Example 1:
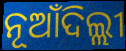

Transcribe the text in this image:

ନୂଆଁଦିଲ୍ଲୀ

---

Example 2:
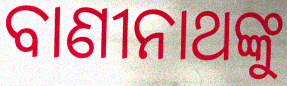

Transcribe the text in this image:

ବାଣୀନାଥଙ୍କୁ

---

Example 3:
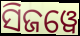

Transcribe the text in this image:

ସିଜୱେ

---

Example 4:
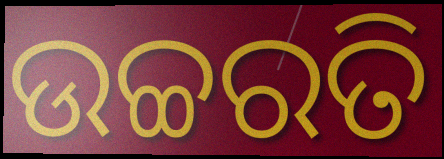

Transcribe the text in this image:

ଉଚ୍ଚରତି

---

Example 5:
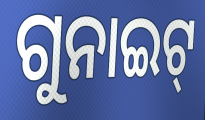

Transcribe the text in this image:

ଗୁନାଇଟ୍